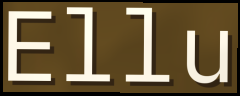
Ellu